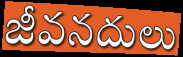
జీవనదులు